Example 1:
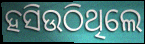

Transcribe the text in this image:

ହସିଉଠିଥିଲେ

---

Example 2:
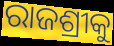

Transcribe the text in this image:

ରାଜଶ୍ରୀକୁ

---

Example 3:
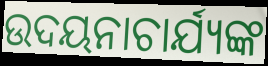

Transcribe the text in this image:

ଉଦୟନାଚାର୍ଯ୍ୟଙ୍କ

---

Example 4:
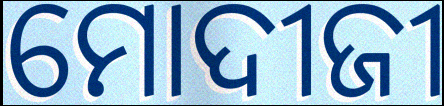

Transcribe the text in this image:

ମୋଦୀଜୀ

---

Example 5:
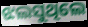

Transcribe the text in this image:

ଝଲସୁଥିଲେ